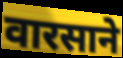
वारसाने